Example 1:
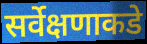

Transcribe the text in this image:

सर्वेक्षणाकडे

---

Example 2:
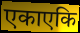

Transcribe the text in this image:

एकाएकि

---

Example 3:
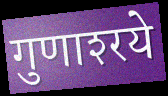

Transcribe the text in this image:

गुणाश्रये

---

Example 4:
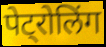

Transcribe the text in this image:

पेट्रोलिंग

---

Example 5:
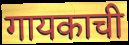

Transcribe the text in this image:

गायकाची